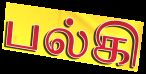
பல்கி